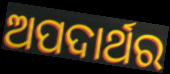
ଅପଦାର୍ଥର